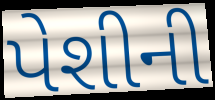
પેશીની